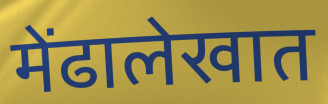
मेंढालेखात